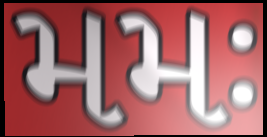
મમઃ